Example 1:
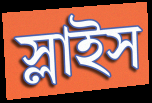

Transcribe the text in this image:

স্লাইস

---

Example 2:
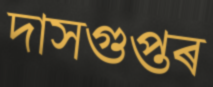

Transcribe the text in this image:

দাসগুপ্তৰ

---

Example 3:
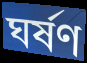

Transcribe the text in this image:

ঘৰ্ষণ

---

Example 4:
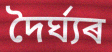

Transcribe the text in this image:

দৈৰ্ঘ্যৰ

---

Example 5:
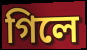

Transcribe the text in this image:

গিলে